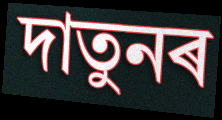
দাতুনৰ